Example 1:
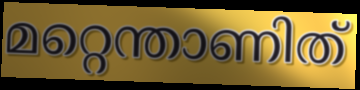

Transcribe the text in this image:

മറ്റെന്താണിത്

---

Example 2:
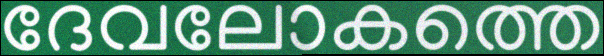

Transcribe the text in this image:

ദേവലോകത്തെ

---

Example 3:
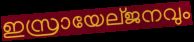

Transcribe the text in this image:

ഇസ്രായേല്ജനവും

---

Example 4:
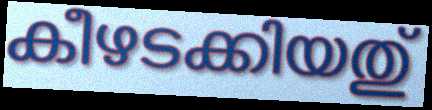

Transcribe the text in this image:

കീഴടക്കിയതു്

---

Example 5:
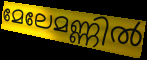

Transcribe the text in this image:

മേലേമണ്ണിൽ